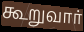
கூறுவார்